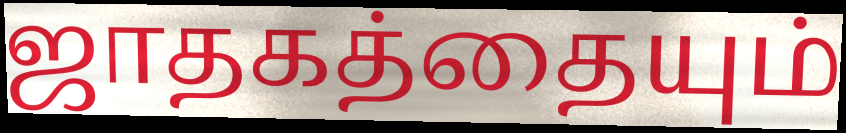
ஜாதகத்தையும்